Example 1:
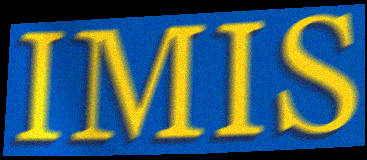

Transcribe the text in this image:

IMIS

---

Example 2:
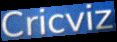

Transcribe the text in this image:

Cricviz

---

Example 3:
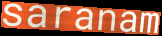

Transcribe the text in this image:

saranam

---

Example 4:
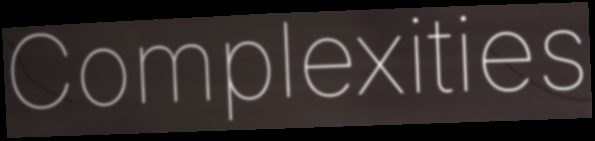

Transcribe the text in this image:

Complexities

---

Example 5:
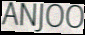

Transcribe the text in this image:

ANJOO